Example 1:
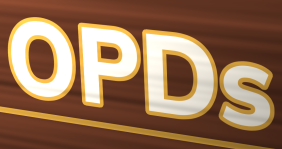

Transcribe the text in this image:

OPDs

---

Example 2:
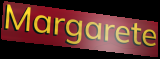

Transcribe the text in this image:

Margarete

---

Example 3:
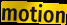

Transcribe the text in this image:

motion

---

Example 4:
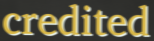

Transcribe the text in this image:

credited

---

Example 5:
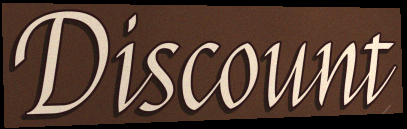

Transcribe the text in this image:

Discount